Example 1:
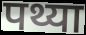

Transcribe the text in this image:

पथ्या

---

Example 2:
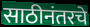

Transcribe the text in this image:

साठीनंतरचे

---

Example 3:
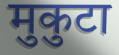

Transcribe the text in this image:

मुकुटा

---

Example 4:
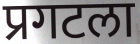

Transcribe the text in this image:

प्रगटला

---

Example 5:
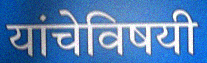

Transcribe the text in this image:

यांचेविषयी